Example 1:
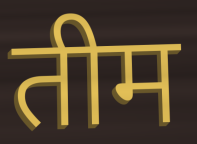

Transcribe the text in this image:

तीम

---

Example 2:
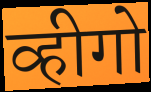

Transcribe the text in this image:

व्हीगो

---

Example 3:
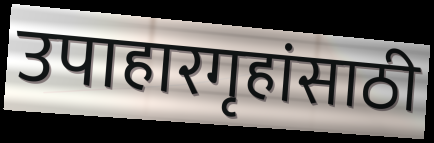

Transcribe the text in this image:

उपाहारगृहांसाठी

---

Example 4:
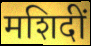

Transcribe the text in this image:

मशिदीं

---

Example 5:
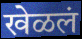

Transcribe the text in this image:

खेळलं